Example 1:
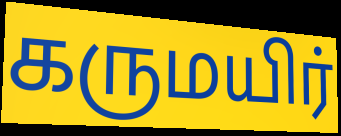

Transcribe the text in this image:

கருமயிர்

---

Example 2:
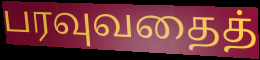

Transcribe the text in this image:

பரவுவதைத்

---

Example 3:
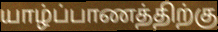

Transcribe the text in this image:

யாழ்ப்பாணத்திற்கு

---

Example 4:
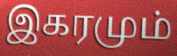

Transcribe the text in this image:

இகரமும்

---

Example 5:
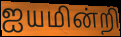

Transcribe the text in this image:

ஐயமின்றி